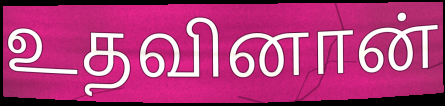
உதவினான்